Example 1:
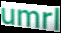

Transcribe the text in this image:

umrl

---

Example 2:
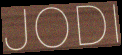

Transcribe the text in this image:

JODI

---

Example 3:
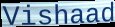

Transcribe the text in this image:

Vishaad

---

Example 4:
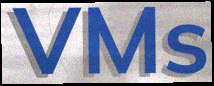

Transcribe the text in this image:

VMs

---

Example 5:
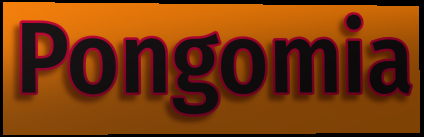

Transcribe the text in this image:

Pongomia